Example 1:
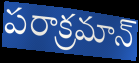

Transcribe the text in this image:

పరాక్రమాన్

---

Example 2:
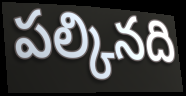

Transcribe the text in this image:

పల్కినది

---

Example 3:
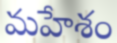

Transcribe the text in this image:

మహేశం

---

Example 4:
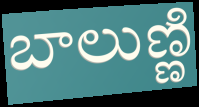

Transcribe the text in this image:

బాలుణ్ణి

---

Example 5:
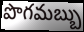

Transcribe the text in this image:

పొగమబ్బు